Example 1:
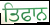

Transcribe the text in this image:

ਤਿਫਾਨ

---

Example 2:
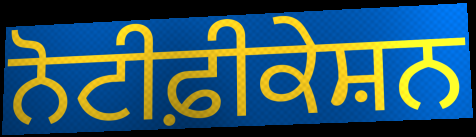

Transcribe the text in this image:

ਨੋਟੀਫ਼ੀਕੇਸ਼ਨ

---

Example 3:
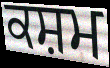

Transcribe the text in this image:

ਕਸ਼ਮ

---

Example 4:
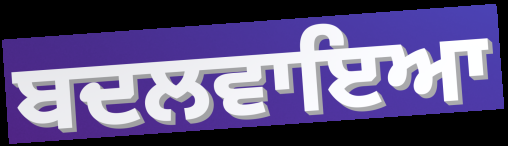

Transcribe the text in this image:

ਬਦਲਵਾਇਆ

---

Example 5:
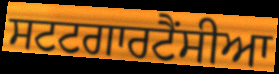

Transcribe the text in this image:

ਸਟਟਗਾਰਟੈਂਸੀਆ